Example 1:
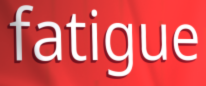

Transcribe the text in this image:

fatigue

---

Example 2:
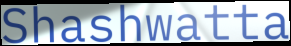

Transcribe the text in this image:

Shashwatta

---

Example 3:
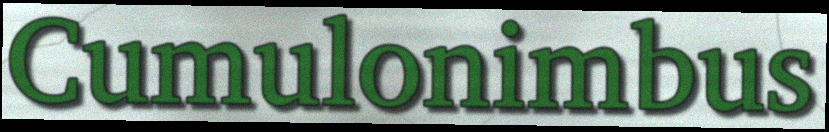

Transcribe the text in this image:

Cumulonimbus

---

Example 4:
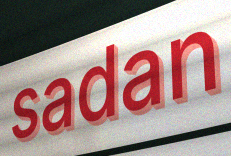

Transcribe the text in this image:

sadan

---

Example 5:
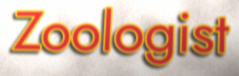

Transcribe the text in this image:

Zoologist